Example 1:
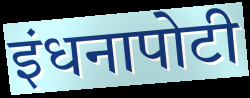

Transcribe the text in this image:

इंधनापोटी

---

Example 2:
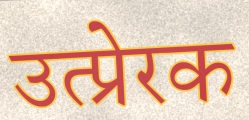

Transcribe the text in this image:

उत्प्रेरक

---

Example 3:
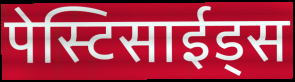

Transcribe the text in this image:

पेस्टिसाईड्स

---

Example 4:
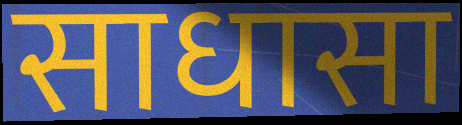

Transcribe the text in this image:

साधासा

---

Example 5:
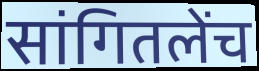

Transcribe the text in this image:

सांगितलेंच